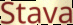
Stava